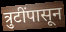
त्रुटींपासून